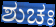
ಶುಚಃ